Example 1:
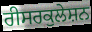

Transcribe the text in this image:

ਰੀਸਰਕੁਲੇਸ਼ਨ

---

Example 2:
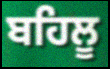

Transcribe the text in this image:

ਬਹਿਲੂ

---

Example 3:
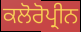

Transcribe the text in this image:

ਕਲੋਰੋਪ੍ਰੀਨ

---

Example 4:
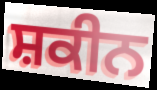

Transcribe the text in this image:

ਸ਼ਕੀਨ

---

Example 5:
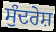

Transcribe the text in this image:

ਸੁੰਦਰੇਸ਼